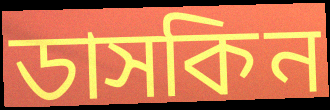
ডাসকিন